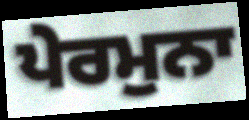
ਪੇਰਮੁਨਾ